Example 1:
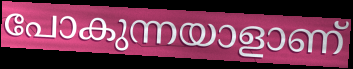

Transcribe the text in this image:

പോകുന്നയാളാണ്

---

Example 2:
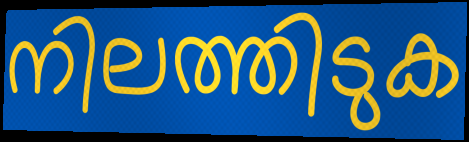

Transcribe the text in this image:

നിലത്തിടുക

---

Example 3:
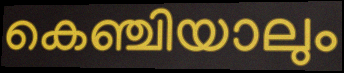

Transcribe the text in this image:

കെഞ്ചിയാലും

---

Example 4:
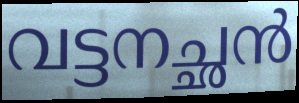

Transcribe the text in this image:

വട്ടനച്ഛൻ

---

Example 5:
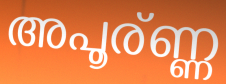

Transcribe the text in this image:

അപൂര്ണ്ണ